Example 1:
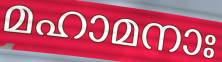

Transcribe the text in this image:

മഹാമനാഃ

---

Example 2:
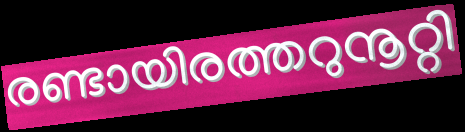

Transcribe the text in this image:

രണ്ടായിരത്തറുനൂറ്റി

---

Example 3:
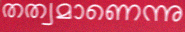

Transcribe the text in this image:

തത്വമാണെന്നു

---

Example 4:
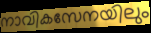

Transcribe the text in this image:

നാവികസേനയിലും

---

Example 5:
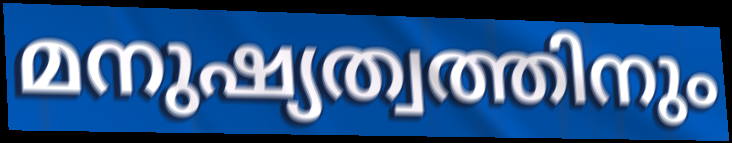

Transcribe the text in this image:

മനുഷ്യത്വത്തിനും